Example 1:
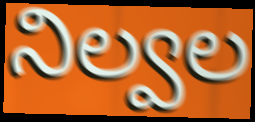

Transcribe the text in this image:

నిల్వల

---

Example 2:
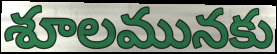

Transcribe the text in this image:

శూలమునకు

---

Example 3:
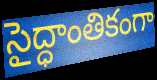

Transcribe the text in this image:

సైద్ధాంతికంగా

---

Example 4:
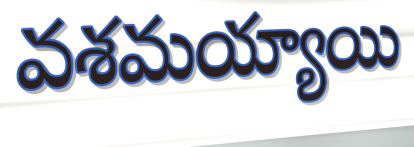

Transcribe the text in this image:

వశమయ్యాయి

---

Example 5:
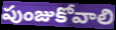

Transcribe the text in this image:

పుంజుకోవాలి